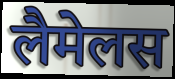
लैमेलस